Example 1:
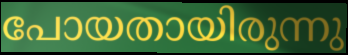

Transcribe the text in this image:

പോയതായിരുന്നു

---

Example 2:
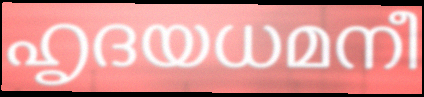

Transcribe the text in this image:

ഹൃദയധമനീ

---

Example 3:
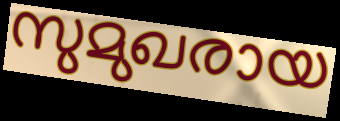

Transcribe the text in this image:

സുമുഖരായ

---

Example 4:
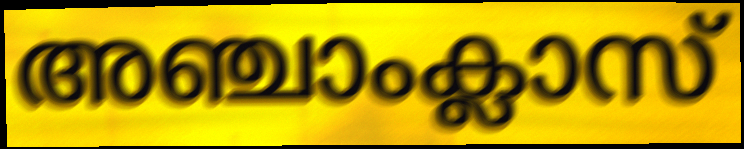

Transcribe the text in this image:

അഞ്ചാംക്ലാസ്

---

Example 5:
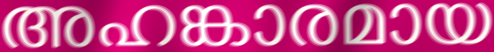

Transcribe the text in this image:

അഹങ്കാരമായ